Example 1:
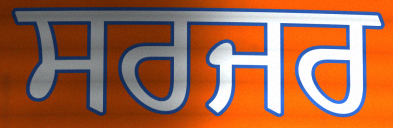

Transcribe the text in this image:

ਸਰਜਰ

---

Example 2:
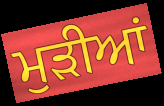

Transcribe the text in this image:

ਮੁੜੀਆਂ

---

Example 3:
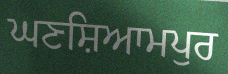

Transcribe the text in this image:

ਘਣਸ਼ਿਆਮਪੁਰ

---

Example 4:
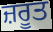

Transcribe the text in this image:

ਜ਼ਰੂਤ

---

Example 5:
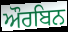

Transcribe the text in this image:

ਔਰਬਿਨ